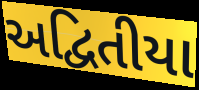
અદ્વિતીયા